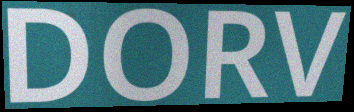
DORV